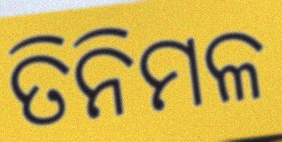
ତିନିମଳ